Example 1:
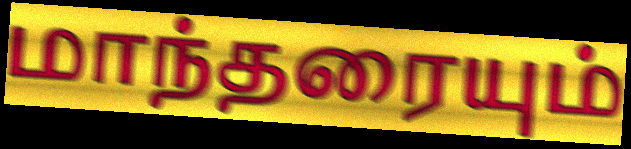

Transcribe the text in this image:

மாந்தரையும்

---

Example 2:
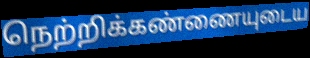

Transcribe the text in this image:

நெற்றிக்கண்ணையுடைய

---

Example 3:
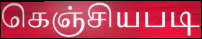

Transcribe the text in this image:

கெஞ்சியபடி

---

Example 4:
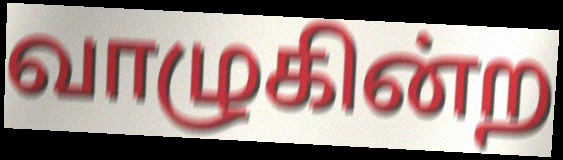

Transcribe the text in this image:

வாழுகின்ற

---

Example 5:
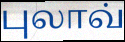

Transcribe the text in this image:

புலாவ்